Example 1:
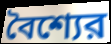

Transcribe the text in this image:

বৈশ্যের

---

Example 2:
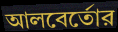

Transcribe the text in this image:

আলবের্তোর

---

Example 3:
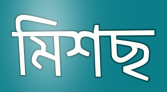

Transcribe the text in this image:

মিশছ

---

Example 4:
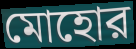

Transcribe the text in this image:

মোহোর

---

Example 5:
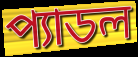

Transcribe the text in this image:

প্যাডল